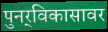
पुनर्विकासावर